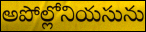
అపోల్లోనియసును